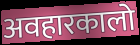
अवहारकालो